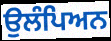
ਉਲੰਪਿਅਨ